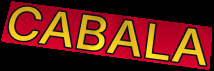
CABALA